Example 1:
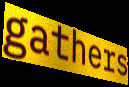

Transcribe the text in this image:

gathers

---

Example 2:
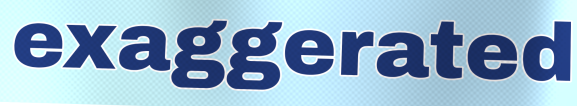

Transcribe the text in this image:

exaggerated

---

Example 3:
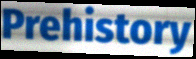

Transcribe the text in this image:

Prehistory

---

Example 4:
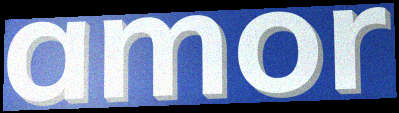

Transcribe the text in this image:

amor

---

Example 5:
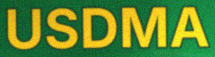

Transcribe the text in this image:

USDMA